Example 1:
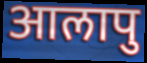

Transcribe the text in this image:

आलापु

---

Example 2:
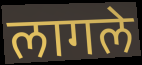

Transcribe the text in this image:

लागले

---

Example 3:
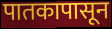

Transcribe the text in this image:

पातकापासून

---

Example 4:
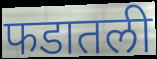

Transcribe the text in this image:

फडातली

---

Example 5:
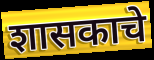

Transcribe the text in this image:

शासकाचे